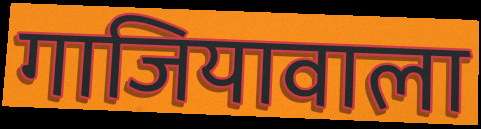
गाजियावाला